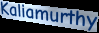
Kaliamurthy